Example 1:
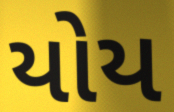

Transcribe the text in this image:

યોય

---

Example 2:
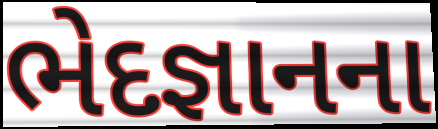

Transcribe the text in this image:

ભેદજ્ઞાનના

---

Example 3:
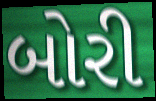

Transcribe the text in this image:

બોરી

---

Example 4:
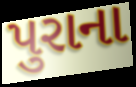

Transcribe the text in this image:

પુરાના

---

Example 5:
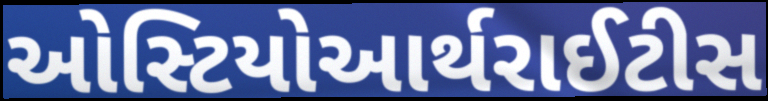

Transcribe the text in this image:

ઓસ્ટિયોઆર્થરાઈટીસ